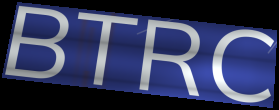
BTRC